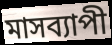
মাসব্যাপী